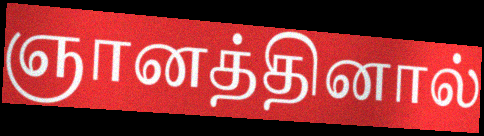
ஞானத்தினால்